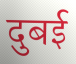
दुबई